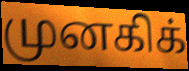
முனகிக்